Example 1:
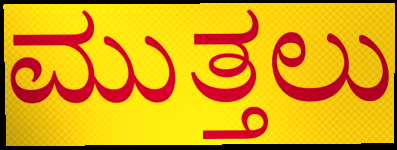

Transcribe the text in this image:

ಮುತ್ತಲು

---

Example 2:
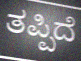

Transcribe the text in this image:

ತಪ್ಪಿದೆ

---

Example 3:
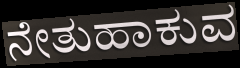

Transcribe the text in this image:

ನೇತುಹಾಕುವ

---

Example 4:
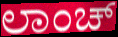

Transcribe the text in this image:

ಲಾಂಚ್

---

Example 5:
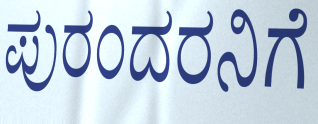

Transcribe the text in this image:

ಪುರಂದರನಿಗೆ